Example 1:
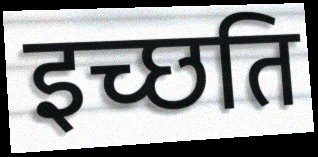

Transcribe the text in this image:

इच्छति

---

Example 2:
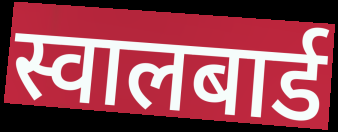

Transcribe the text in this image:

स्वालबार्ड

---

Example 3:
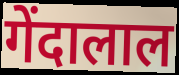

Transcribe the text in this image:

गेंदालाल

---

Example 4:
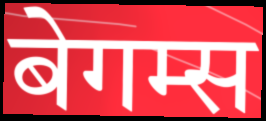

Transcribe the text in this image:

बेगम्स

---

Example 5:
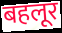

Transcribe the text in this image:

बहलूर